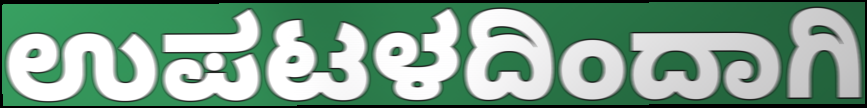
ಉಪಟಳದಿಂದಾಗಿ